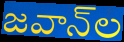
జవాన్‌ల